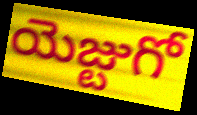
యెజ్టుగో